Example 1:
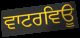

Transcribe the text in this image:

ਵਾਟਰਵਿਊ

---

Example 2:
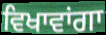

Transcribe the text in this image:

ਵਿਖਾਵਾਂਗਾ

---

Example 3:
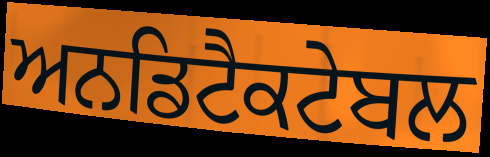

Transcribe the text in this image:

ਅਨਡਿਟੈਕਟੇਬਲ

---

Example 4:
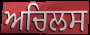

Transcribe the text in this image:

ਅਚਿਲਸ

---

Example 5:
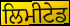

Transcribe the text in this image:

ਲਿਮੀਟੇਡ